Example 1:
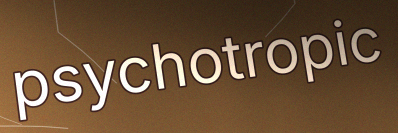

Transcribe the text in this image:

psychotropic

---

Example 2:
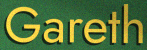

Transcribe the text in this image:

Gareth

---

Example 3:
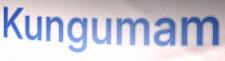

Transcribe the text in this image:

Kungumam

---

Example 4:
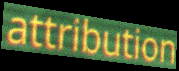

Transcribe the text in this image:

attribution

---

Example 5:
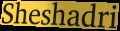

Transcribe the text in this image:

Sheshadri